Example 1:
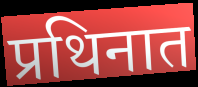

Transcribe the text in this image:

प्रथिनात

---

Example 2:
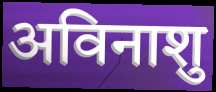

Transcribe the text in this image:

अविनाशु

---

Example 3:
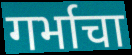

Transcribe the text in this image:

गर्भाचा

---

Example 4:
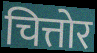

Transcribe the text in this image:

चित्तोर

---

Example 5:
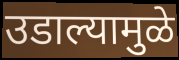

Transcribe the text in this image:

उडाल्यामुळे